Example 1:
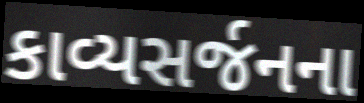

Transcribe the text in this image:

કાવ્યસર્જનના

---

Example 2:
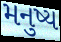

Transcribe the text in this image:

મનુષ્ય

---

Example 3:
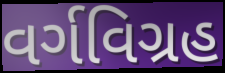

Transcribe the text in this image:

વર્ગવિગ્રહ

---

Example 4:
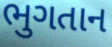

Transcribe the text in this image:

ભુગતાન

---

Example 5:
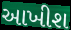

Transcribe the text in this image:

આખીશ